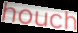
houch